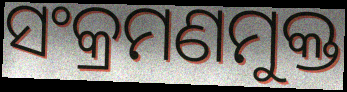
ସଂକ୍ରମଣମୁକ୍ତ